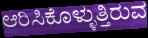
ಆರಿಸಿಕೊಳ್ಳುತ್ತಿರುವ